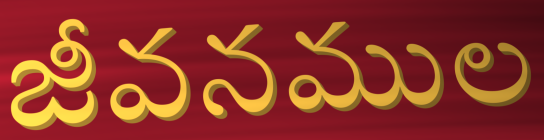
జీవనముల